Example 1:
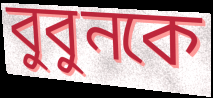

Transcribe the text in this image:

বুবুনকে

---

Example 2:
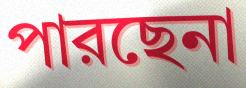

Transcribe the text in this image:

পারছেনা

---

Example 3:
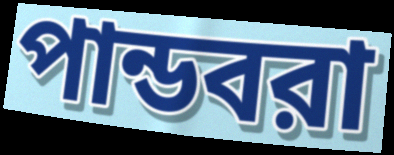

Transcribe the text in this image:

পান্ডবরা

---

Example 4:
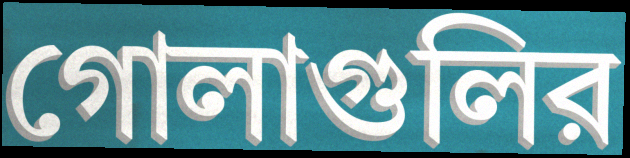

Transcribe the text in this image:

গোলাগুলির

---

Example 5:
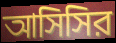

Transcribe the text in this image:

আসিসির